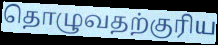
தொழுவதற்குரிய